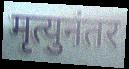
मृत्युनंतर